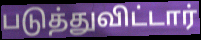
படுத்துவிட்டார்